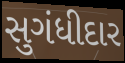
સુગંધીદાર